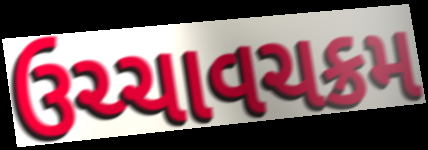
ઉચ્ચાવચક્રમ